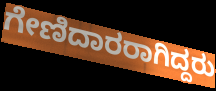
ಗೇಣಿದಾರರಾಗಿದ್ದರು